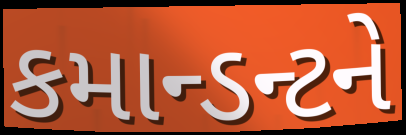
કમાન્ડન્ટને